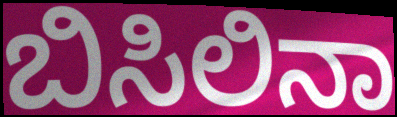
ಬಿಸಿಲಿನಾ